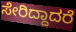
ಸೇರಿದ್ದಾದರೆ